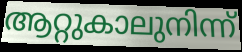
ആറ്റുകാലുനിന്ന്